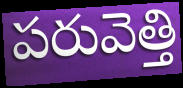
పరువెత్తి